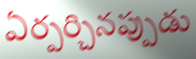
ఏర్పర్చినప్పుడు